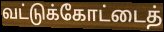
வட்டுக்கோட்டைத்